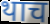
थाच